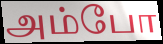
அம்போ